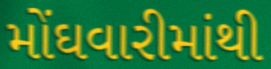
મોંઘવારીમાંથી